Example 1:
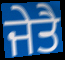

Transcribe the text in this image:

ਜੇਤੈ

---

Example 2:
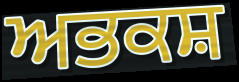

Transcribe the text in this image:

ਅਭਕਸ਼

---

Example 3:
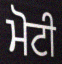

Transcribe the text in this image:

ਮੋਟੀ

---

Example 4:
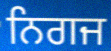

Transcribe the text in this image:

ਨਿਗਜ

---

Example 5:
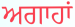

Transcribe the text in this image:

ਅਗਾਹਾਂ